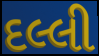
દલ્લી